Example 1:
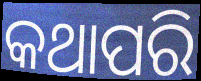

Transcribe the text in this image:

କଥାପରି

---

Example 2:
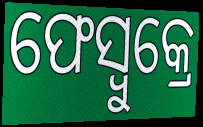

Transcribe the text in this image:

ଫେସ୍ବୁକ୍ରେ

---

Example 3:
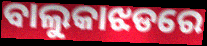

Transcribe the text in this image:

ବାଲୁକାଝଡରେ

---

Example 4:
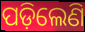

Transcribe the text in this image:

ପଡ଼ିଲେଣି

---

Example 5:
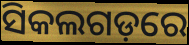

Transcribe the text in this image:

ସିକଲଗଡ଼ରେ